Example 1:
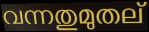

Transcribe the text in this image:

വന്നതുമുതല്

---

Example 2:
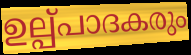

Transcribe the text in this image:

ഉല്പ്പാദകരും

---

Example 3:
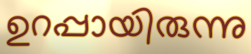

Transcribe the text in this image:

ഉറപ്പായിരുന്നു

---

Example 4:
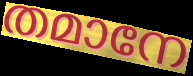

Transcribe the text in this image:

തമാനേ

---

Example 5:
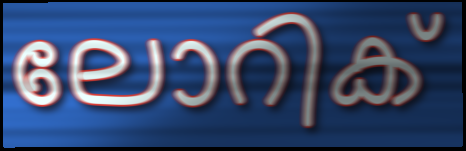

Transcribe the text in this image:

ലോറിക്